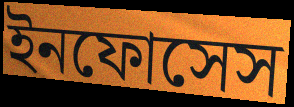
ইনফোসেস